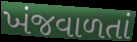
ખંજવાળતાં